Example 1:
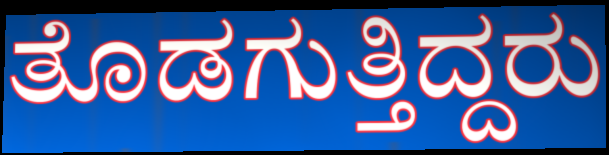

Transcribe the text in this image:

ತೊಡಗುತ್ತಿದ್ದರು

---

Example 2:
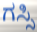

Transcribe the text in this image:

ಗಸ್ಸಿ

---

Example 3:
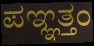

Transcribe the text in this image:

ಪಞ್ಞತ್ತಂ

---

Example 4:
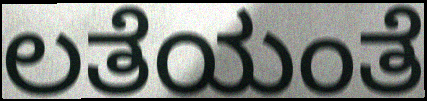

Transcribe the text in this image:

ಲತೆಯಂತೆ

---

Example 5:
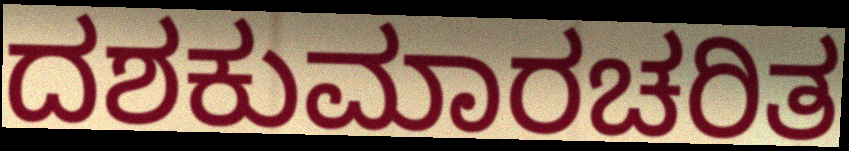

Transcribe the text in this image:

ದಶಕುಮಾರಚರಿತ